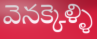
వెనక్కెళ్ళి